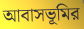
আবাসভূমির